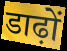
डाढ़ों